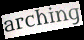
arching